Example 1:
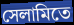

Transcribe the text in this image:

সেলামিতে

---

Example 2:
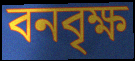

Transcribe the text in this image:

বনবৃক্ষ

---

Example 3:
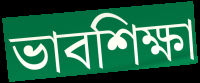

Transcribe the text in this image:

ভাবশিক্ষা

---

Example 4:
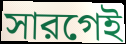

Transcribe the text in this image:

সারগেই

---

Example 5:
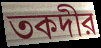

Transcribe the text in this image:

তকদীর